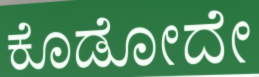
ಕೊಡೋದೇ